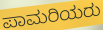
ಪಾಮರಿಯರು